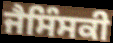
ਜੈਸਿੰਸਕੀ